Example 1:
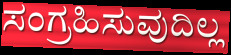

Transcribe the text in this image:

ಸಂಗ್ರಹಿಸುವುದಿಲ್ಲ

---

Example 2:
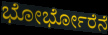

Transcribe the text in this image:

ಭೋರ್ಭೋರೆನೆ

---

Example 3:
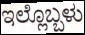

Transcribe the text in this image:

ಇಲ್ಲೊಬ್ಬಳು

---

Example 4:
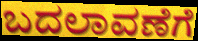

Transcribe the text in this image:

ಬದಲಾವಣೆಗೆ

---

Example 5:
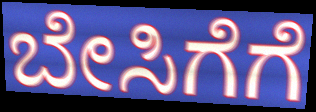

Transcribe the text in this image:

ಬೇಸಿಗೆಗೆ